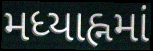
મધ્યાહ્નમાં